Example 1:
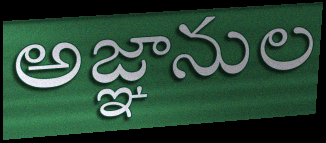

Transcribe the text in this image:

అజ్ఞానుల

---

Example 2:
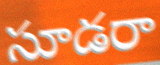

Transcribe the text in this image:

సూడరా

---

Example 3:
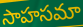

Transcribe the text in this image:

సాహసమా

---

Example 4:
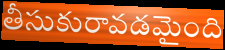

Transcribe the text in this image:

తీసుకురావడమైంది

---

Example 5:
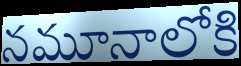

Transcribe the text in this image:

నమూనాలోకి